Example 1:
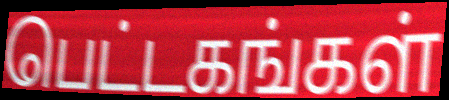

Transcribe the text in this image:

பெட்டகங்கள்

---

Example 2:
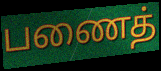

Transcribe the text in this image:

பணைத்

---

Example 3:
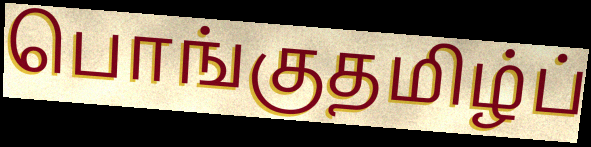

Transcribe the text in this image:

பொங்குதமிழ்ப்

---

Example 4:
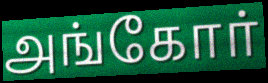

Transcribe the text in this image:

அங்கோர்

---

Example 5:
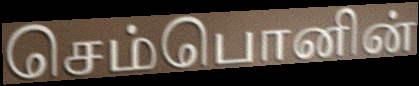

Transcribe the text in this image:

செம்பொனின்